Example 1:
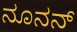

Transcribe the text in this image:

ನೂನನ್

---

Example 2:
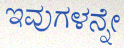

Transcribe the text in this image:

ಇವುಗಳನ್ನೇ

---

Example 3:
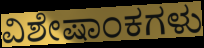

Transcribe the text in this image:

ವಿಶೇಷಾಂಕಗಳು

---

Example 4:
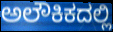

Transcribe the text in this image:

ಅಲೌಕಿಕದಲ್ಲಿ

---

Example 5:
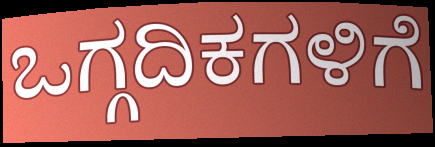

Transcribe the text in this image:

ಒಗ್ಗದಿಕಗಳಿಗೆ